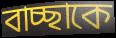
বাচ্ছাকে